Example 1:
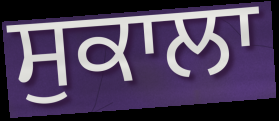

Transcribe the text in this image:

ਸੁਕਾਲਾ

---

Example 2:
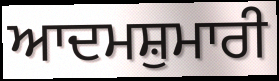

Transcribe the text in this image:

ਆਦਮਸ਼ੁਮਾਰੀ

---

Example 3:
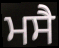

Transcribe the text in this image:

ਮਸੈ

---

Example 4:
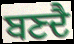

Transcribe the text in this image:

ਬਣਦੈ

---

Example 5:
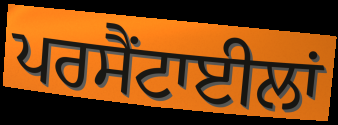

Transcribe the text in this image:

ਪਰਸੈਂਟਾਈਲਾਂ